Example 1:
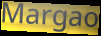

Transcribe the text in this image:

Margao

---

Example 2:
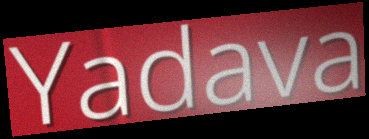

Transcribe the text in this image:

Yadava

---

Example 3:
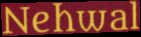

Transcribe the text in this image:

Nehwal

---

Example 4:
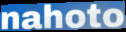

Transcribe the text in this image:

nahoto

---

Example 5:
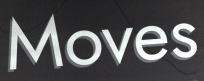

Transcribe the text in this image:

Moves